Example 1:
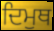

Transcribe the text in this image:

ਦਿਮੁਥ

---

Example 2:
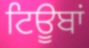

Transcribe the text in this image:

ਟਿਊਬਾਂ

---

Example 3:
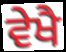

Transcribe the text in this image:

ਵੇਖੈ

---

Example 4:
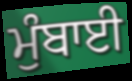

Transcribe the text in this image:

ਮੁੰਬਾਈ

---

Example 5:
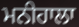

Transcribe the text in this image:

ਮਨੀਹਾਲਾ